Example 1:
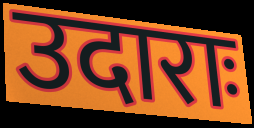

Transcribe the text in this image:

उदाराः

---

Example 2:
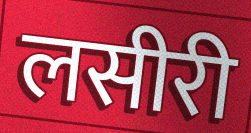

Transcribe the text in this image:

लसीरी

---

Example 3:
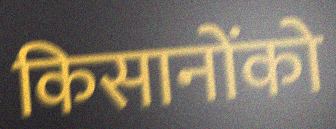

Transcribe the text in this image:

किसानोंको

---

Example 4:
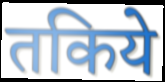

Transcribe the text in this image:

तकिये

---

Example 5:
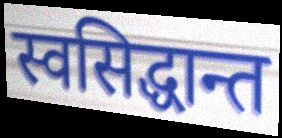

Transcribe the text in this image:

स्वसिद्धान्त